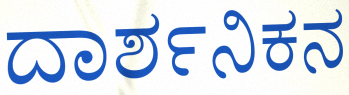
ದಾರ್ಶನಿಕನ